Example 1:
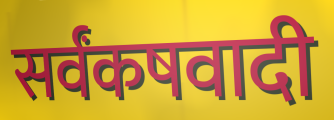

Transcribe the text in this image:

सर्वंकषवादी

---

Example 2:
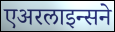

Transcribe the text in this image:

एअरलाइन्सने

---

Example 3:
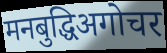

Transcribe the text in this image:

मनबुद्धिअगोचर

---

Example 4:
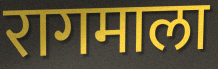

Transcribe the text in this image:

रागमाला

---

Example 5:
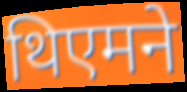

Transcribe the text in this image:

थिएमने